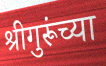
श्रीगुरूंच्या